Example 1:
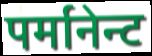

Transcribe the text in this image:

पर्मानेन्ट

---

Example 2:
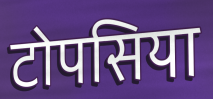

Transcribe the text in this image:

टोपसिया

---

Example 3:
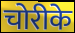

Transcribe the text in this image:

चोरीके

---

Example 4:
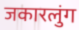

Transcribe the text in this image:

जकारलुंग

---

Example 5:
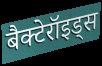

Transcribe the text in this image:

बैक्टेरॉइड्स